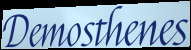
Demosthenes